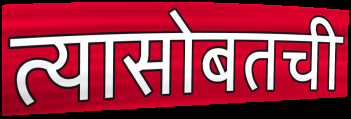
त्यासोबतची